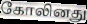
கோலினது